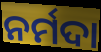
ନର୍ମଦା